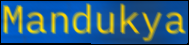
Mandukya